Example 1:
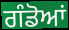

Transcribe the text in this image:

ਗੰਡੋਆਂ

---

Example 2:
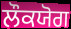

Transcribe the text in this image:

ਲੌਕਯੋਗ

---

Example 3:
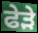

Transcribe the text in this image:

ਫੇੜੇ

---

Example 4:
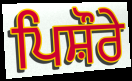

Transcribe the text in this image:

ਪਿਸ਼ੌਰੇ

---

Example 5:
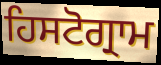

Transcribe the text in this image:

ਹਿਸਟੋਗ੍ਰਾਮ